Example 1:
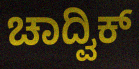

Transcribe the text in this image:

ಚಾದ್ವಿಕ್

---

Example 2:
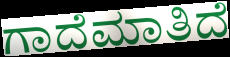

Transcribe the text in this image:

ಗಾದೆಮಾತಿದೆ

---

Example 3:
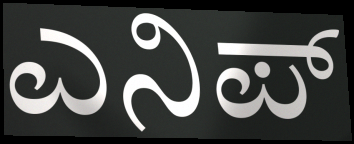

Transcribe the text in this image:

ಎನಿಪ್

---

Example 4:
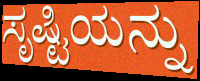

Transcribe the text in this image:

ಸೃಷ್ಟಿಯನ್ನು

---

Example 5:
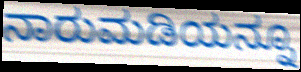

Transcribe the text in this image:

ನಾರುಮಡಿಯನ್ನೂ